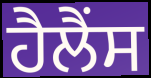
ਹੈਲੈਂਸ